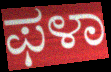
ಫಳಾ